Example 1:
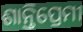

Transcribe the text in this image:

ଶାନ୍ତିପ୍ରେମୀ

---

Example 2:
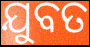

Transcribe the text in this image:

ଯୁବତ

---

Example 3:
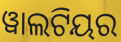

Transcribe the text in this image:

ୱାଲଟିୟର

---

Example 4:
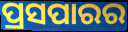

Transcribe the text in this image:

ପ୍ରସପାରର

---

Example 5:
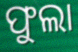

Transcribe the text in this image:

ଫୁଲା